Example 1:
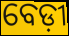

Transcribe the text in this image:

ବେଡ଼ୀ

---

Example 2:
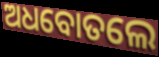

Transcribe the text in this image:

ଅଧବୋତଲେ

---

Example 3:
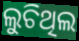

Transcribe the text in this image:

ଲୁଚିଥିଲ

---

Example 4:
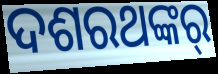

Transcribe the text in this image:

ଦଶରଥଙ୍କର୍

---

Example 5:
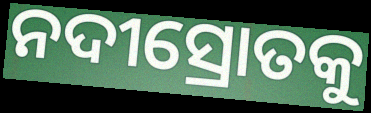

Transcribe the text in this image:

ନଦୀସ୍ରୋତକୁ